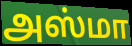
அஸ்மா